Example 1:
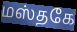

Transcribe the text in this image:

மஸ்தகே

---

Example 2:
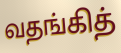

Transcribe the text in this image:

வதங்கித்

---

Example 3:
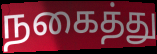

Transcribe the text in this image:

நகைத்து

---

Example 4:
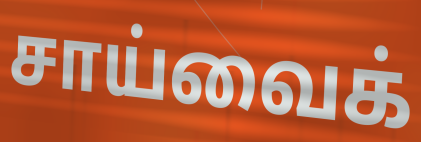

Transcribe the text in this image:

சாய்வைக்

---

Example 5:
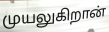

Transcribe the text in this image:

முயலுகிறான்